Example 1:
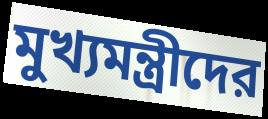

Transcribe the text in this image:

মুখ্যমন্ত্রীদের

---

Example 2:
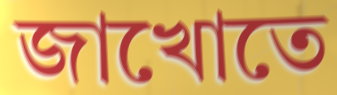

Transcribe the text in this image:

জাখোতে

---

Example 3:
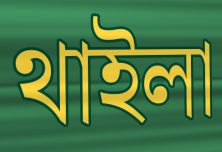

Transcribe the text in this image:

থাইলা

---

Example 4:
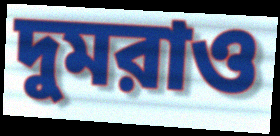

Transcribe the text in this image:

দুমরাও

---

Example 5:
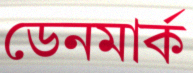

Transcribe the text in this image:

ডেনমার্ক